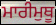
ਮਾਰੀਮੁਥੂ